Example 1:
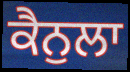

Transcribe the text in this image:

ਕੈਨੁਲਾ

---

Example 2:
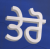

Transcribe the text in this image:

ਤੇਰੋ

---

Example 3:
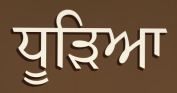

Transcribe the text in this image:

ਧੂੜਿਆ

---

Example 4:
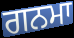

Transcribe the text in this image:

ਗਨਮਾ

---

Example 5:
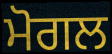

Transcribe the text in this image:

ਮੋਗਲ